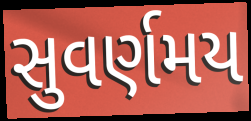
સુવર્ણમય